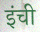
इंची